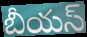
బీయస్